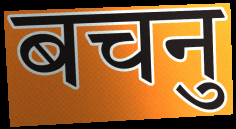
बचनु